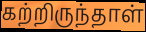
கற்றிருந்தாள்